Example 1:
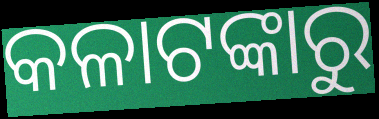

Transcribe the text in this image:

କଳାଟଙ୍କାରୁ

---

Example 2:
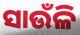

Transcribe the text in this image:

ସାଉଁଳି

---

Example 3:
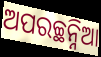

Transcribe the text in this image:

ଅପରଚ୍ଛନ୍ନିଆ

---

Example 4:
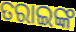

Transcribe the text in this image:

ତରାଇଙ୍କ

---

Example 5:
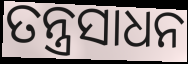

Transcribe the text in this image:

ତନ୍ତ୍ରସାଧନ